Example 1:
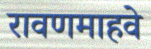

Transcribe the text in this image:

रावणमाहवे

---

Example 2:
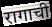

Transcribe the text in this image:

रागाची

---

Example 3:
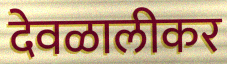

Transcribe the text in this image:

देवळालीकर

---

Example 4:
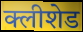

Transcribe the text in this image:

क्लीशेड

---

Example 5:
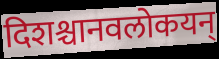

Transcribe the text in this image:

दिशश्चानवलोकयन्